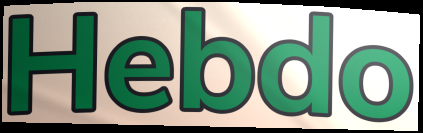
Hebdo